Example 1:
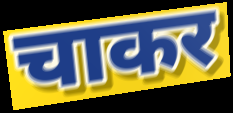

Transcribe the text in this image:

चाकर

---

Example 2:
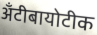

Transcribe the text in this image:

अँटीबायोटीक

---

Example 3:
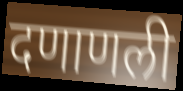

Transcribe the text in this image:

दणाणली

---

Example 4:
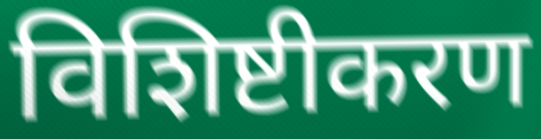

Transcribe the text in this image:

विशिष्टीकरण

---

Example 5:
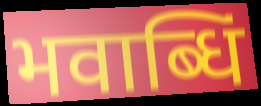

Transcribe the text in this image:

भवाब्धिं